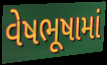
વેષભૂષામાં